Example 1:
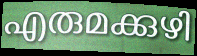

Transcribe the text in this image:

എരുമക്കുഴി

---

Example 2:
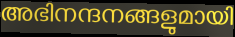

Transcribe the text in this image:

അഭിനന്ദനങ്ങളുമായി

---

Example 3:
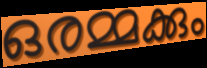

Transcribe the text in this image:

ഒരമ്മക്കും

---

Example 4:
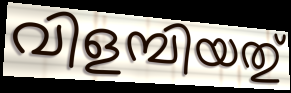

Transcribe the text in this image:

വിളമ്പിയതു്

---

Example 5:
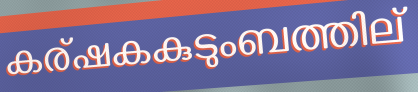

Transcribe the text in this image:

കര്ഷകകുടുംബത്തില്